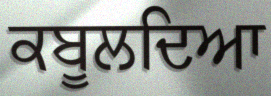
ਕਬੂਲਦਿਆ